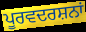
ਪੂਰਵਦਰਸ਼ਨਾਂ